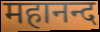
महानन्द